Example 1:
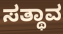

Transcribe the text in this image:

ಸತ್ಥಾವ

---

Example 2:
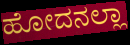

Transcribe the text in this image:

ಹೋದನಲ್ಲಾ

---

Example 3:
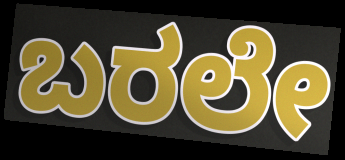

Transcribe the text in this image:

ಬರಲೇ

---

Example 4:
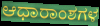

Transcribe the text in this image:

ಆಧಾರಾಂಶಗಳ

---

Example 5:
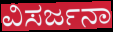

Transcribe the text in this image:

ವಿಸರ್ಜನಾ